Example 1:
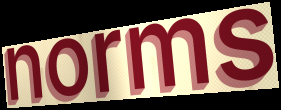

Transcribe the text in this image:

norms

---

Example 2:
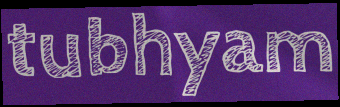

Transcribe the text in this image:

tubhyam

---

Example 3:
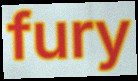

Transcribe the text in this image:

fury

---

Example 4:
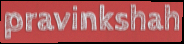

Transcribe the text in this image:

pravinkshah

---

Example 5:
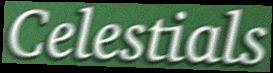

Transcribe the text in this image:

Celestials